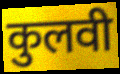
कुलवी